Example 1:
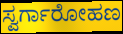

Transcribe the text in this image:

ಸ್ವರ್ಗಾರೋಹಣ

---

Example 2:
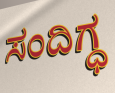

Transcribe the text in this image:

ಸಂದಿಗ್ಧ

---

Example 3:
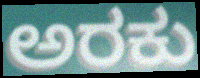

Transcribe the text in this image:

ಅರಕು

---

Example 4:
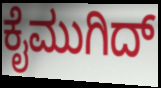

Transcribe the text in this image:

ಕೈಮುಗಿದ್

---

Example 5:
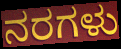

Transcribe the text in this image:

ನರಗಳು